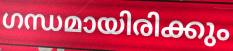
ഗന്ധമായിരിക്കും